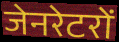
जेनरेटरों